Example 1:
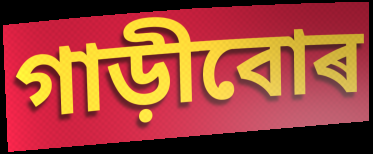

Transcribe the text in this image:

গাড়ীবোৰ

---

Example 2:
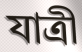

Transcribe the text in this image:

যাত্ৰী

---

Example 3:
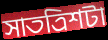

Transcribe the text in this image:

সাতত্ৰিশটা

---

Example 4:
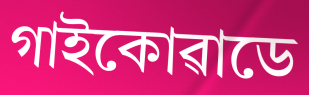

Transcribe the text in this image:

গাইকোৱাডে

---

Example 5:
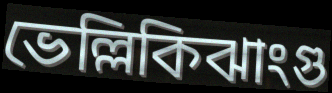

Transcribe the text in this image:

ভেল্লিকিঝাংগু